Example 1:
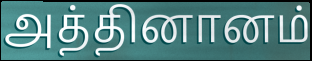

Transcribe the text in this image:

அத்தினானம்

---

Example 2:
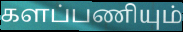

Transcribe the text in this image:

களப்பணியும்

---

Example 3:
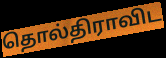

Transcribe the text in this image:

தொல்திராவிட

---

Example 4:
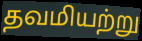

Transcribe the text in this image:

தவமியற்று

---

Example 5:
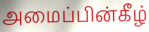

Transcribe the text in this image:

அமைப்பின்கீழ்